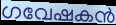
ഗവേഷകൻ